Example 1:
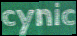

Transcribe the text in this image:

cynic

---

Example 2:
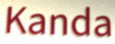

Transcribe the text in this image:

Kanda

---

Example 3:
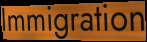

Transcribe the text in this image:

Immigration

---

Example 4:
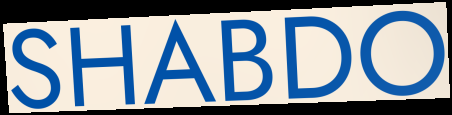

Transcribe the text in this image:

SHABDO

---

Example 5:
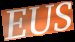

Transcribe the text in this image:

EUS